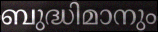
ബുദ്ധിമാനും